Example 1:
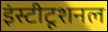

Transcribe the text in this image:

इंस्टीटूशनल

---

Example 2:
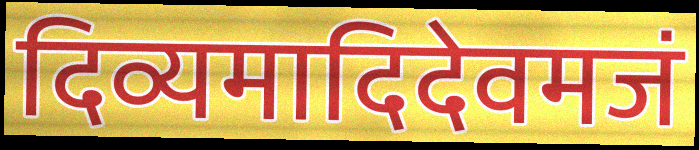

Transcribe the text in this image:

दिव्यमादिदेवमजं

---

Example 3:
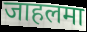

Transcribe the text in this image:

जाहलमा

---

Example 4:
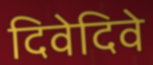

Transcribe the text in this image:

दिवेदिवे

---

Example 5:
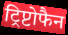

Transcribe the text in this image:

ट्रिप्टोफैन